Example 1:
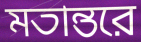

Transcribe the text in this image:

মতান্তরে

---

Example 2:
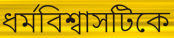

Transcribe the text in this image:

ধর্মবিশ্বাসটিকে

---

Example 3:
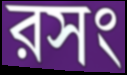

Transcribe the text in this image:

রসং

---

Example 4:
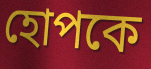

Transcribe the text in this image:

হোপকে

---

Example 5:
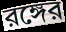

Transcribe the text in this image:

রঙ্গের